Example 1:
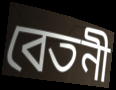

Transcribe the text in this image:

বেতনী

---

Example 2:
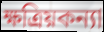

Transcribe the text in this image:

ক্ষত্রিয়কন্যা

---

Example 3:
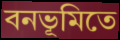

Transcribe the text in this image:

বনভূমিতে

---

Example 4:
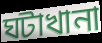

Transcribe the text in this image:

ঘটাখানা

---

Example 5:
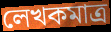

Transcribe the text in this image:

লেখকমাত্র